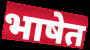
भाषेत